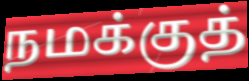
நமக்குத்